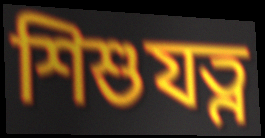
শিশুযত্ন